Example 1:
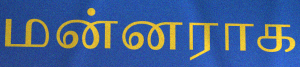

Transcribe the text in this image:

மன்னராக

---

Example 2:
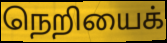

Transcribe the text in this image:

நெறியைக்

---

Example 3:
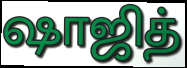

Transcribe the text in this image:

ஷாஜித்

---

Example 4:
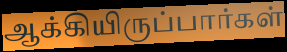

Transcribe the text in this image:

ஆக்கியிருப்பார்கள்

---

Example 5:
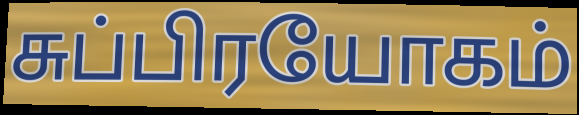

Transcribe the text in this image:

சுப்பிரயோகம்